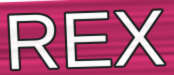
REX